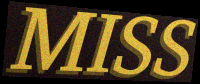
MISS